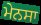
ਮੇਨਸਾ